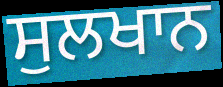
ਸੁਲਖਾਨ